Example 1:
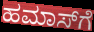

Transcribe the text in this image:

ಹಮಾಸ್‌ಗೆ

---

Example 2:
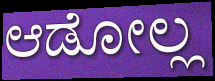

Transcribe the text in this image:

ಆಡೋಲ್ಲ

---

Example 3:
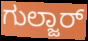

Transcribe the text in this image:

ಗುಲ್ಜಾರ್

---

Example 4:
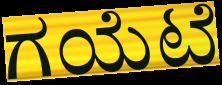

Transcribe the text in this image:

ಗಯೆಟೆ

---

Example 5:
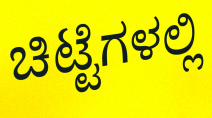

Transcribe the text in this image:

ಚಿಟ್ಟೆಗಳಲ್ಲಿ